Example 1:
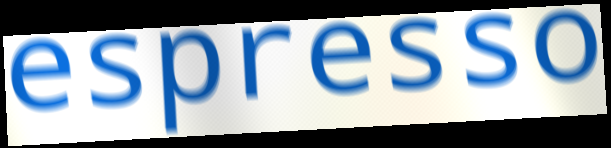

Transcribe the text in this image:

espresso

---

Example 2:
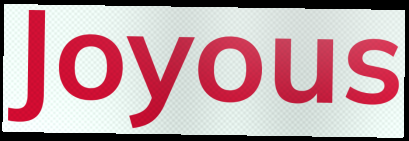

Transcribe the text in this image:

Joyous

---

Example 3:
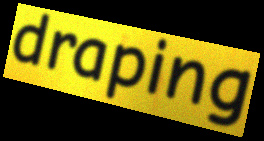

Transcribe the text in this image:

draping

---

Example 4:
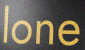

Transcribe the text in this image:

lone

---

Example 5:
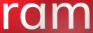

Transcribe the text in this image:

ram